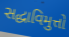
સદ્ધાવિમુત્તો